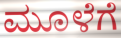
ಮೂಳೆಗೆ